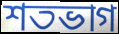
শতভাগ